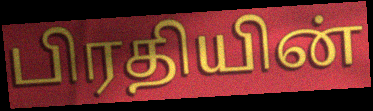
பிரதியின்